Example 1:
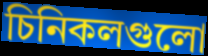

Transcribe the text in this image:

চিনিকলগুলো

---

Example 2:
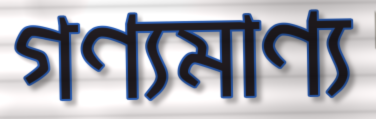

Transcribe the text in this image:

গণ্যমাণ্য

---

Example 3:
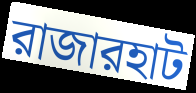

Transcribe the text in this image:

রাজারহাট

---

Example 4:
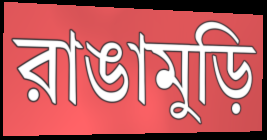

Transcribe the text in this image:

রাঙামুড়ি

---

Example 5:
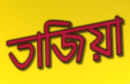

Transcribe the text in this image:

তাজিয়া